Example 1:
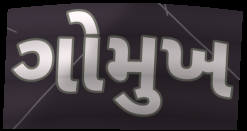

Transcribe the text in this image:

ગોમુખ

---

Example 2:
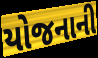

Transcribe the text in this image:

યોજનાની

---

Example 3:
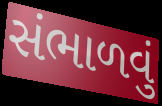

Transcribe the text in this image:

સંભાળવું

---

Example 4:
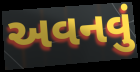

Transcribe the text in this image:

અવનવું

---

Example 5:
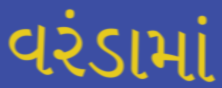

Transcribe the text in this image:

વરંડામાં